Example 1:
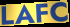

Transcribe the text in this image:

LAFC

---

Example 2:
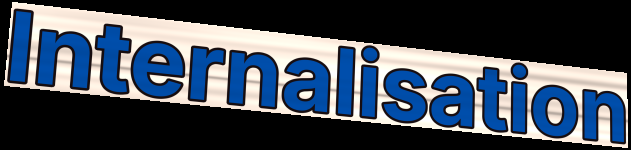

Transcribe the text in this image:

Internalisation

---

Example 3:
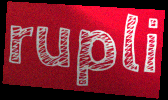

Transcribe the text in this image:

rupli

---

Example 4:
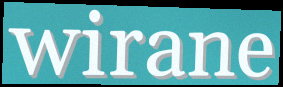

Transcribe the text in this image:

wirane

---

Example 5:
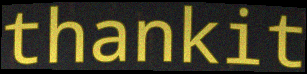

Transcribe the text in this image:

thankit